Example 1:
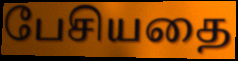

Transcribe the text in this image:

பேசியதை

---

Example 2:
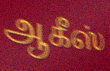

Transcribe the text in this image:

ஆகீஸ்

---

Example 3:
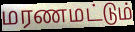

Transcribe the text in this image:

மரணமட்டும்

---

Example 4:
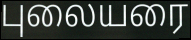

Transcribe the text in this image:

புலையரை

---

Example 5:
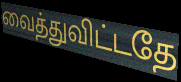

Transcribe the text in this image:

வைத்துவிட்டதே